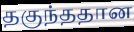
தகுந்ததான